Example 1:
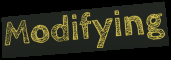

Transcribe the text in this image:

Modifying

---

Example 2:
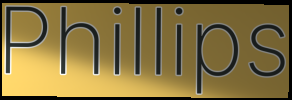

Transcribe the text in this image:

Phillips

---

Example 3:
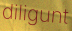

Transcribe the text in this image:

diligunt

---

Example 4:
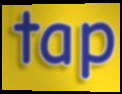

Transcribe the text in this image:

tap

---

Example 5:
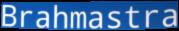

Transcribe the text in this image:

Brahmastra